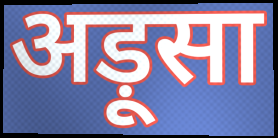
अड़ूसा